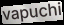
vapuchi